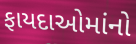
ફાયદાઓમાંનો